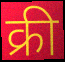
क्री